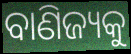
ବାଣିଜ୍ୟକୁ